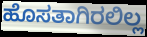
ಹೊಸತಾಗಿರಲಿಲ್ಲ